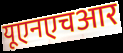
यूएनएचआर